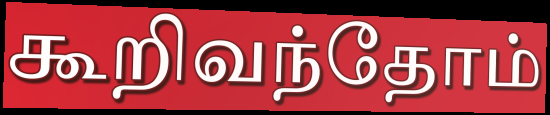
கூறிவந்தோம்